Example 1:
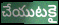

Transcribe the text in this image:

చేయుటకై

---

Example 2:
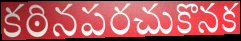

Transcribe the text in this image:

కఠినపరచుకొనక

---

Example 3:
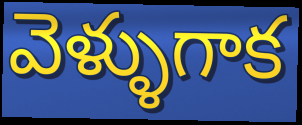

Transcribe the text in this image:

వెళ్ళుగాక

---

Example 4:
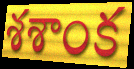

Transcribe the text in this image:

శశాంక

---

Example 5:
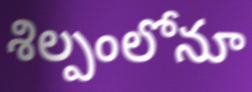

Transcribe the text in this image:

శిల్పంలోనూ